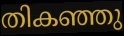
തികഞ്ഞു